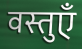
वस्तुएँ